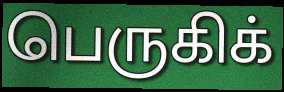
பெருகிக்